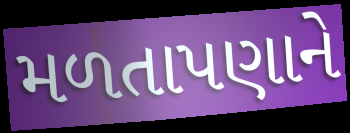
મળતાપણાને